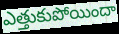
ఎత్తుకుపోయిందా